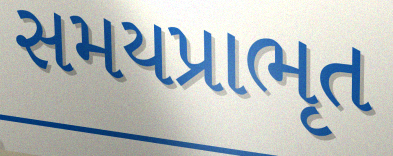
સમયપ્રાભૃત